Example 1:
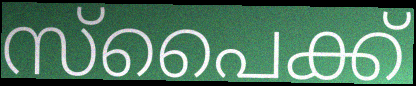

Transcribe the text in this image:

സ്പൈക്ക്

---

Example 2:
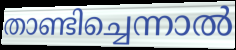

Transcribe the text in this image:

താണ്ടിച്ചെന്നാൽ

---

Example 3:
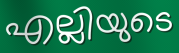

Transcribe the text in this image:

എല്ലിയുടെ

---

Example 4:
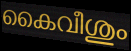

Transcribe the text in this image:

കൈവീശും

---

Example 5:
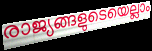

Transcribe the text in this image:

രാജ്യങ്ങളുടെയെല്ലാം